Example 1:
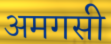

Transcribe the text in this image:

अमगसी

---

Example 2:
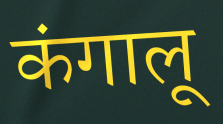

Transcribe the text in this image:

कंगालू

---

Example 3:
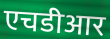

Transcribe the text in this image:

एचडीआर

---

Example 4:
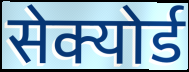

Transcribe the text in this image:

सेक्योर्ड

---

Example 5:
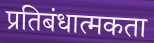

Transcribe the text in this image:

प्रतिबंधात्मकता